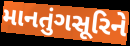
માનતુંગસૂરિને